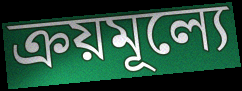
ক্রয়মূল্যে